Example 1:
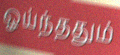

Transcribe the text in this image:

ஓய்ந்ததும்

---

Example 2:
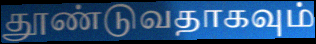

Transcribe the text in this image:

தூண்டுவதாகவும்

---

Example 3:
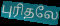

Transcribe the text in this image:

புரிதலே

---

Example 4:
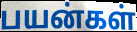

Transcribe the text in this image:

பயன்கள்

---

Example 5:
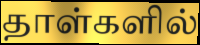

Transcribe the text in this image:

தாள்களில்